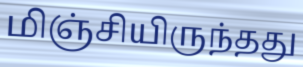
மிஞ்சியிருந்தது